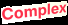
Complex